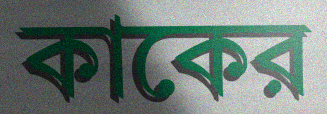
কাকের